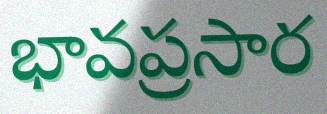
భావప్రసార